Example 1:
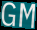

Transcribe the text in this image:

GM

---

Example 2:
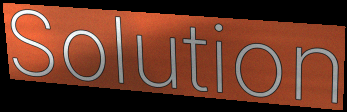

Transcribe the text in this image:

Solution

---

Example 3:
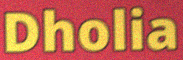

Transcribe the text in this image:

Dholia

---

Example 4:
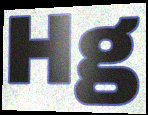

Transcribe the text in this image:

Hg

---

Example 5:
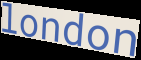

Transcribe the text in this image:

london